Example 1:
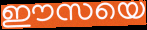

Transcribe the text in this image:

ഈസയെ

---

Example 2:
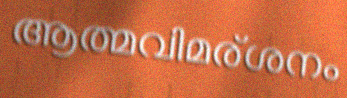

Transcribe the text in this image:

ആത്മവിമര്ശനം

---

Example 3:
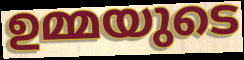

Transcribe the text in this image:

ഉമ്മയുടെ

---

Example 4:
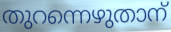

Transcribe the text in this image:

തുറന്നെഴുതാന്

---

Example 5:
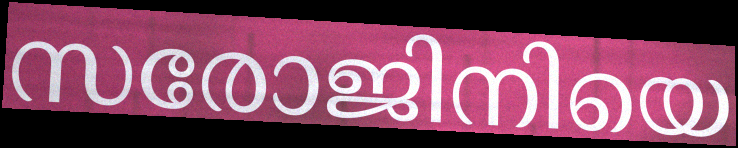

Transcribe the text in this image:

സരോജിനിയെ